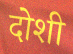
दोशी